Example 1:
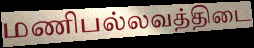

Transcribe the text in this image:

மணிபல்லவத்திடை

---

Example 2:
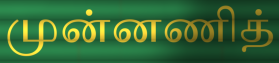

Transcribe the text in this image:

முன்னணித்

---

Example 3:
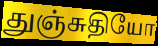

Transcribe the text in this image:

துஞ்சுதியோ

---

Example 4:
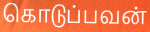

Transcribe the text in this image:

கொடுப்பவன்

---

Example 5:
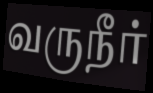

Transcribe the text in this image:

வருநீர்